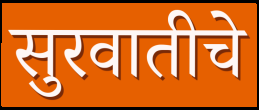
सुरवातीचे